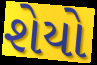
શેયો